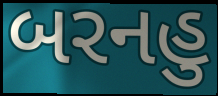
બરનહુ